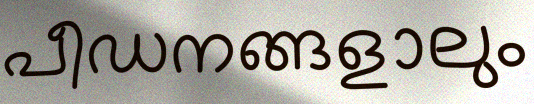
പീഡനങ്ങളാലും